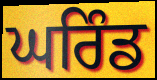
ਘਰਿੰਡ